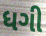
ધગી